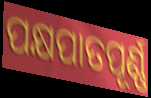
ପକ୍ଷପାତପୂର୍ଣ୍ଣ